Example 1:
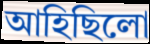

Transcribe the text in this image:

আহিছিলো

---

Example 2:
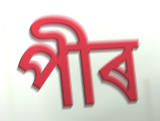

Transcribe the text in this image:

পীৰ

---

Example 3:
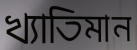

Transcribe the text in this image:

খ্যাতিমান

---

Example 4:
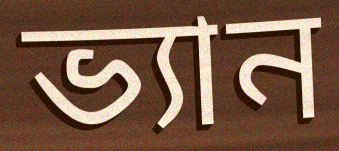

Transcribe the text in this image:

ভ্যান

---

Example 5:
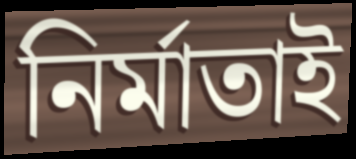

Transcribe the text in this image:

নিৰ্মাতাই